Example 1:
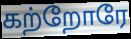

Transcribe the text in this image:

கற்றோரே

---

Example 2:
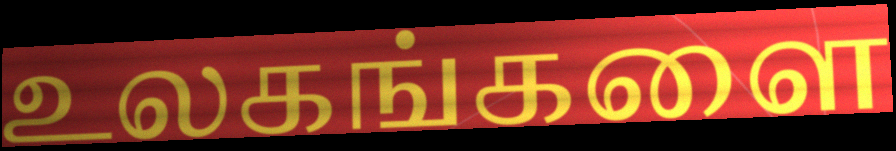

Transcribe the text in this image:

உலகங்களை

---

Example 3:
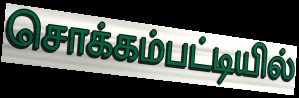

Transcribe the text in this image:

சொக்கம்பட்டியில்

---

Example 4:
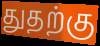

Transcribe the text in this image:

துதற்கு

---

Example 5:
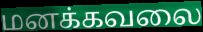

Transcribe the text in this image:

மனக்கவலை